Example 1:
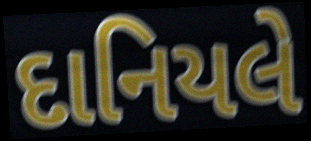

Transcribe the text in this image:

દાનિયલે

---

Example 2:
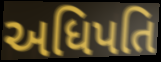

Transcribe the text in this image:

અધિપતિ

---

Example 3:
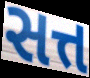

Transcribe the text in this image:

સત્ત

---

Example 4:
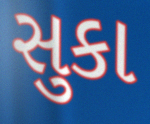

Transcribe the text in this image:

સુકા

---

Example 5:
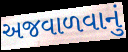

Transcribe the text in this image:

અજવાળવાનું